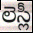
లెస్లీ